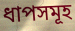
ধাপসমূহ